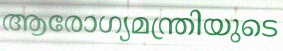
ആരോഗ്യമന്ത്രിയുടെ